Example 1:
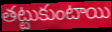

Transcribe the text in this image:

తట్టుకుంటాయి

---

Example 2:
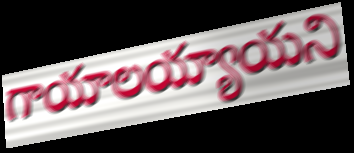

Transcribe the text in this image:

గాయాలయ్యాయని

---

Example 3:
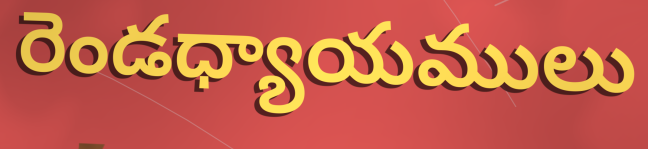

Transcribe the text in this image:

రెండధ్యాయములు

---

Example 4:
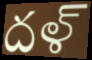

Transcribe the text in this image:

దళ్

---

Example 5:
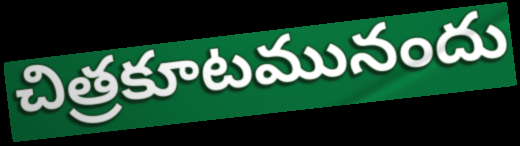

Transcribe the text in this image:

చిత్రకూటమునందు